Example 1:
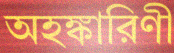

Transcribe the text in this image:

অহঙ্কারিণী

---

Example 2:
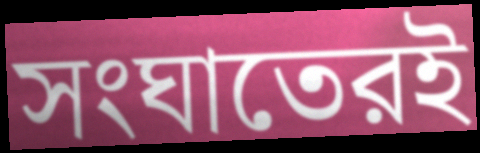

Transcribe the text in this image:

সংঘাতেরই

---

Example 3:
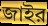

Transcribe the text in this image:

জাইর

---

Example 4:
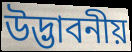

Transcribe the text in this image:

উদ্ভাবনীয়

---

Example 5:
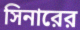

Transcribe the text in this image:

সিনারের